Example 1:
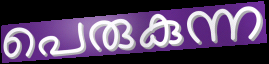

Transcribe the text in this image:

പെരുകുന്ന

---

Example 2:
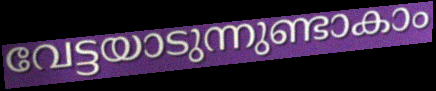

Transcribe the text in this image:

വേട്ടയാടുന്നുണ്ടാകാം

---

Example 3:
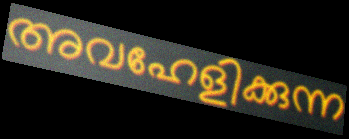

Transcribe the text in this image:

അവഹേളിക്കുന്ന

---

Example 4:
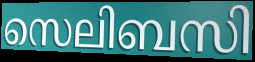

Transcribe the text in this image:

സെലിബസി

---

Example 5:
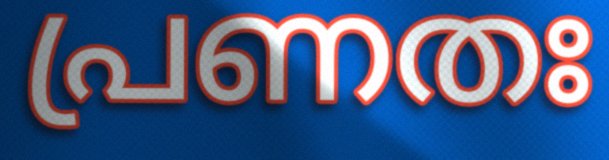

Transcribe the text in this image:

പ്രണതഃ